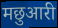
मछुआरी